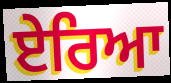
ਏਰਿਆ